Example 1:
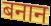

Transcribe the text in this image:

बनान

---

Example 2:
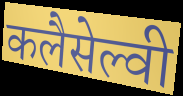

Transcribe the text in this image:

कलैसेल्वी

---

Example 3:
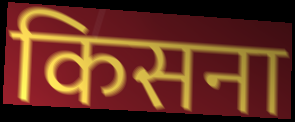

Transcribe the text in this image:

किसना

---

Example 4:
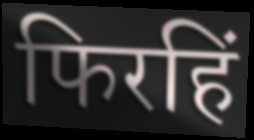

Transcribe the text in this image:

फिरहिं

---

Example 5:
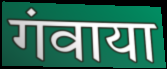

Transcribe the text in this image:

गंवाया